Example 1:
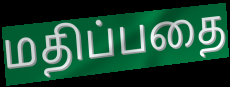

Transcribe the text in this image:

மதிப்பதை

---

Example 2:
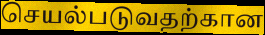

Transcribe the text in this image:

செயல்படுவதற்கான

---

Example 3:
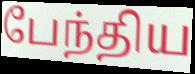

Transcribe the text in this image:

பேந்திய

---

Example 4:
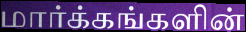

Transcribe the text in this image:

மார்க்கங்களின்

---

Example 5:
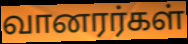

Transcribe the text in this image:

வானரர்கள்